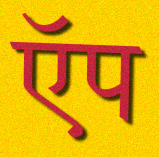
ऍप